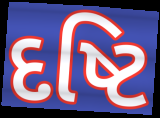
દષ્ટિ